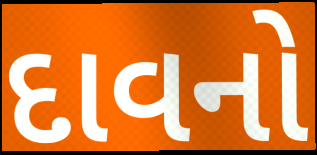
દાવનો